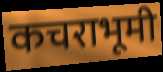
कचराभूमी